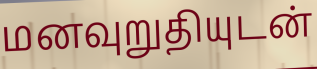
மனவுறுதியுடன்